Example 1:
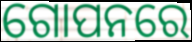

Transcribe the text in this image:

ଗୋପନରେ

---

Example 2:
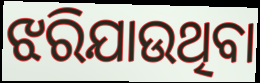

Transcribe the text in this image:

ଝରିଯାଉଥିବା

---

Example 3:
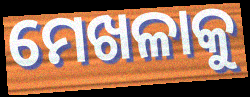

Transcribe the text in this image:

ମେଖଳାକୁ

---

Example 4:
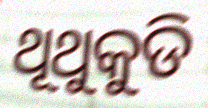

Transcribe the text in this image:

ଥୂଥୁକୁଡି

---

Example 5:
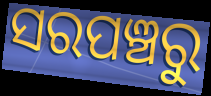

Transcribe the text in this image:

ସରପଞ୍ଚରୁ